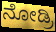
ನೋಡ್ರಿ